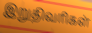
இறுதிவரிகள்